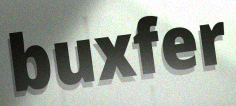
buxfer